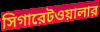
সিগারেটওয়ালার